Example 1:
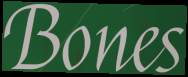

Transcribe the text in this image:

Bones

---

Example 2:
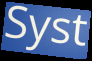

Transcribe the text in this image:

Syst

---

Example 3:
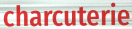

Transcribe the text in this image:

charcuterie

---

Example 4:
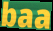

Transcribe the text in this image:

baa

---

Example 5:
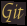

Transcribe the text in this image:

Git